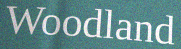
Woodland